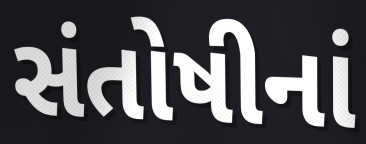
સંતોષીનાં